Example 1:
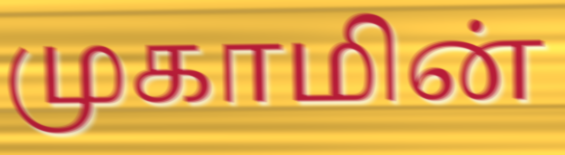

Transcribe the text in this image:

முகாமின்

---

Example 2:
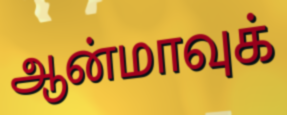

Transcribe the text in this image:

ஆன்மாவுக்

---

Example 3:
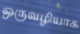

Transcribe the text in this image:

ஒருவழியாக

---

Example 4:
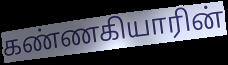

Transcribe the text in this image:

கண்ணகியாரின்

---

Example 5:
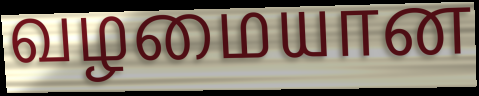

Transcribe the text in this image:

வழமையான